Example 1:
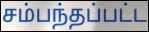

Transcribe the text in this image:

சம்பந்தப்பட்ட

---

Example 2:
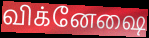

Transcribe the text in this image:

விக்னேஷை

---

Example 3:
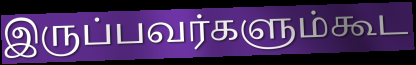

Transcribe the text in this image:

இருப்பவர்களும்கூட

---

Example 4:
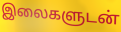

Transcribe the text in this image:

இலைகளுடன்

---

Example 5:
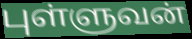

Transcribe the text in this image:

புள்ளுவன்